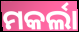
ମକର୍ଲା